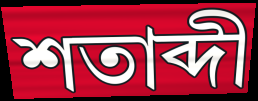
শতাব্দী